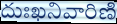
దుఃఖనివారిణి